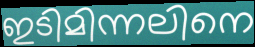
ഇടിമിന്നലിനെ